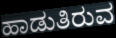
ಹಾಡುತಿರುವ